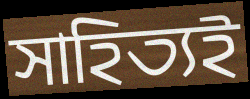
সাহিত্যই